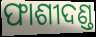
ଫାଶୀଦଣ୍ଡ